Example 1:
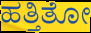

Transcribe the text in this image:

ಹತ್ತಿತೋ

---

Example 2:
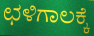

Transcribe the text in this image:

ಛಳಿಗಾಲಕ್ಕೆ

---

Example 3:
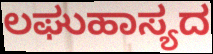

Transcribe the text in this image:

ಲಘುಹಾಸ್ಯದ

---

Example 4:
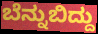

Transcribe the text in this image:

ಬೆನ್ನುಬಿದ್ದು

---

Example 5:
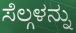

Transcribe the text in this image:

ಸೆಲ್ಗಳನ್ನು